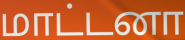
மாட்டனா